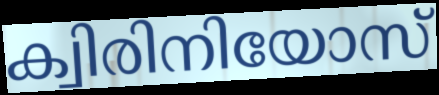
ക്വിരിനിയോസ്